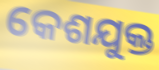
କେଶଯୁକ୍ତ